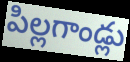
పిల్లగాండ్లు